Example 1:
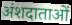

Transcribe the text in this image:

अंशदाताओं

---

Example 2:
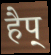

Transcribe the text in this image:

हैप्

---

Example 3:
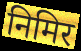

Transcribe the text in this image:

निमिर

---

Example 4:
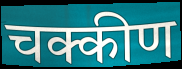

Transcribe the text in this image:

चक्कीण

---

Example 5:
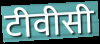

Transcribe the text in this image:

टीवीसी